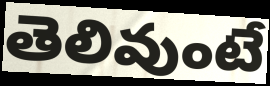
తెలివుంటే